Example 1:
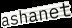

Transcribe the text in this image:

ashanet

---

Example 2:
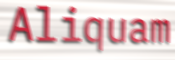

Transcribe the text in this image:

Aliquam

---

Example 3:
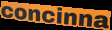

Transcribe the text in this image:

concinna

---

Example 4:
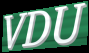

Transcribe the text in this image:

VDU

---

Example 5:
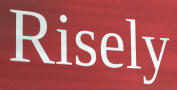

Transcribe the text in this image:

Risely